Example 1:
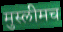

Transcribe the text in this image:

मुस्लीमच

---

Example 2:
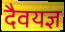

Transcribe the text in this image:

दैवयज्ञ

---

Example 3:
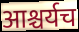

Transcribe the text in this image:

आश्चर्यच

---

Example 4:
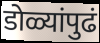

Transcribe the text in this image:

डोळ्यांपुढं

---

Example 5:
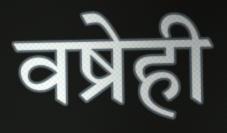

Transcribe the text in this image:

वष्रेही